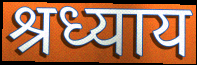
श्रध्याय